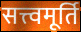
सत्त्वमूर्ति